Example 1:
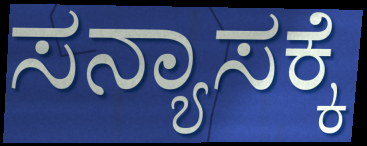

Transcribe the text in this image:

ಸನ್ಯಾಸಕ್ಕೆ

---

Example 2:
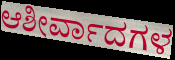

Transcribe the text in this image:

ಆಶೀರ್ವಾದಗಳ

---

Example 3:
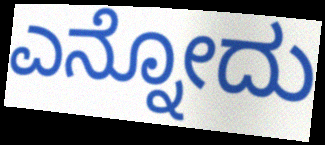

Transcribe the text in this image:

ಎನ್ನೋದು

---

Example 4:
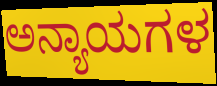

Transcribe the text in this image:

ಅನ್ಯಾಯಗಳ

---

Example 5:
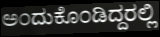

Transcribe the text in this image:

ಅಂದುಕೊಂಡಿದ್ದರಲ್ಲಿ